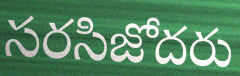
సరసిజోదరు